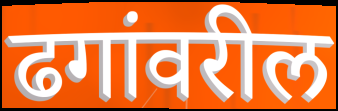
ढगांवरील